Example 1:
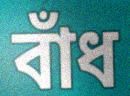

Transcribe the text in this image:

বাঁধ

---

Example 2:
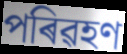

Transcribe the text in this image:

পৰিৱহণ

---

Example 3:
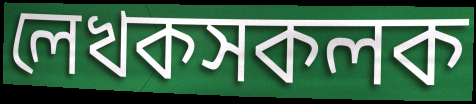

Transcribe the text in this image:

লেখকসকলক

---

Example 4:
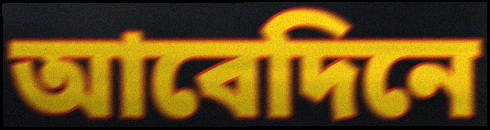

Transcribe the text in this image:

আবেদিনে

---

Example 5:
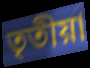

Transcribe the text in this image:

তৃতীয়া